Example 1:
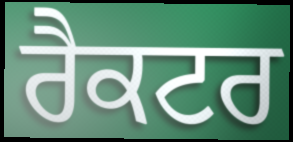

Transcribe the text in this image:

ਰੈਕਟਰ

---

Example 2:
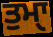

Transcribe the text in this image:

ਤੁਮਾੑ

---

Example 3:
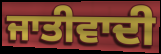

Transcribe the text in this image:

ਜਾਤੀਵਾਦੀ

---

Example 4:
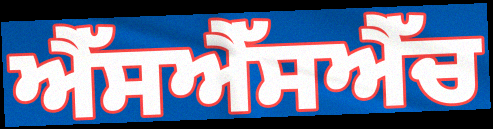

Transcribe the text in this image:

ਐੱਸਐੱਸਐੱਚ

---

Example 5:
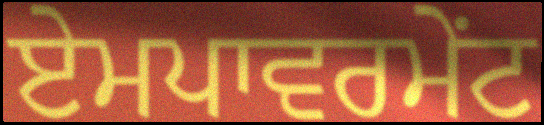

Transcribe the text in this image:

ਏਮਪਾਵਰਮੇਂਟ